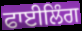
ਫਾਈਲਿੰਗ